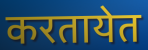
करतायेत